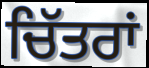
ਚਿੱਤਰਾਂ